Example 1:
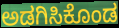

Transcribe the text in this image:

ಅಡಗಿಸಿಕೊಂಡ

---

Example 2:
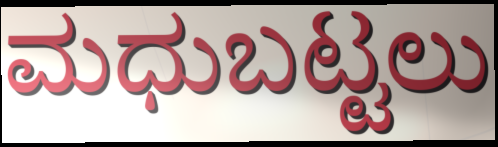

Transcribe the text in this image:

ಮಧುಬಟ್ಟಲು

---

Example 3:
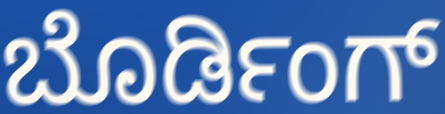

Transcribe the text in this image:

ಬೊರ್ಡಿಂಗ್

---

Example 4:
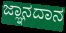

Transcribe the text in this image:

ಜ್ಞಾನದಾನ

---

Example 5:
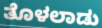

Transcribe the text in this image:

ತೊಳಲಾಡು